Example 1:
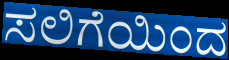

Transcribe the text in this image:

ಸಲಿಗೆಯಿಂದ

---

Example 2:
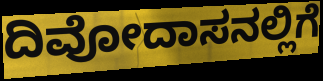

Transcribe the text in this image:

ದಿವೋದಾಸನಲ್ಲಿಗೆ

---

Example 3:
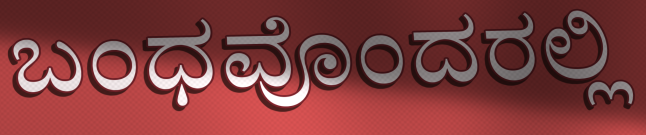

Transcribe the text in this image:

ಬಂಧವೊಂದರಲ್ಲಿ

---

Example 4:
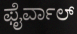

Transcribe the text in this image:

ಫೈರ್ವಾಲ್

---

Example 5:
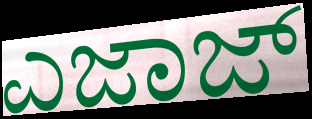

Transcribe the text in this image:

ಎಜಾಜ್